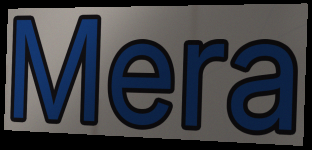
Mera